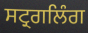
ਸਟ੍ਰਗਲਿੰਗ